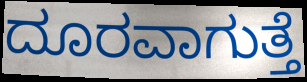
ದೂರವಾಗುತ್ತೆ